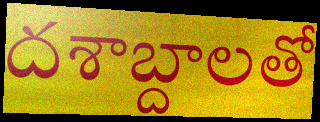
దశాబ్దాలతో